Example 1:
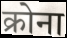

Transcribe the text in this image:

क्रोना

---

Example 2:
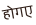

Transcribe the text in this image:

होगए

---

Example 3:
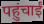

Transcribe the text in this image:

पहुंचाईं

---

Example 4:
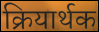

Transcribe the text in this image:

क्रियार्थक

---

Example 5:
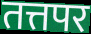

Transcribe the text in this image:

तत्तपर